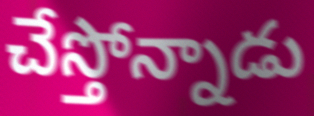
చేస్తోన్నాడు